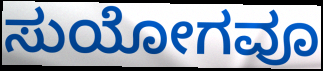
ಸುಯೋಗವೂ